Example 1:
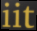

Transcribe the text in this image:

iit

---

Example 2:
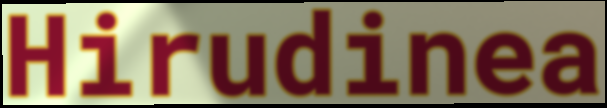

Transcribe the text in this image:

Hirudinea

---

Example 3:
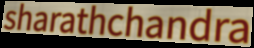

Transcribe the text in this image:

sharathchandra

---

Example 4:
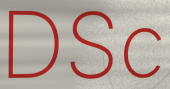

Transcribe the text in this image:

DSc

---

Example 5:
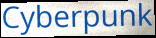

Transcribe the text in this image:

Cyberpunk